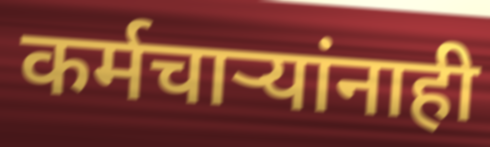
कर्मचाऱ्यांनाही